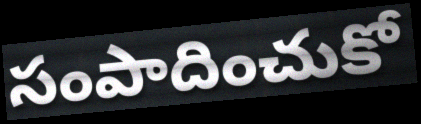
సంపాదించుకో